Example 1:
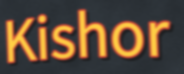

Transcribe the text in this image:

Kishor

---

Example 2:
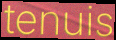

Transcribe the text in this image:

tenuis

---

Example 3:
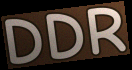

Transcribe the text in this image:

DDR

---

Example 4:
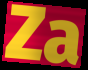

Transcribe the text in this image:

Za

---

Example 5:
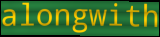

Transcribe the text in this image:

alongwith